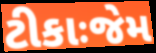
ટીકાઃજેમ